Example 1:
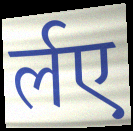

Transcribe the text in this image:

र्लए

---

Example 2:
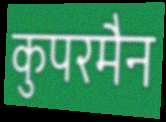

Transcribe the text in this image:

कुपरमैन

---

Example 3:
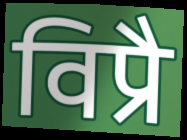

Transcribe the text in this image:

विप्रै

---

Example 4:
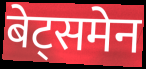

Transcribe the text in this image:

बेट्समेन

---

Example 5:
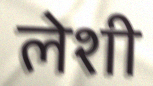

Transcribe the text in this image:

लेशी